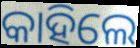
କାହିଲେ